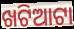
ଖଟିଆଟା